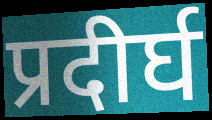
प्रदीर्घ